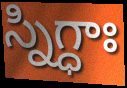
స్నిగ్ధాః